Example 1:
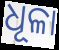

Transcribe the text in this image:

ଧୂଳା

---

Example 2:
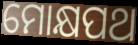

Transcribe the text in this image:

ମୋକ୍ଷପଥ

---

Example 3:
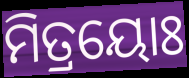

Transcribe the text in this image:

ମିତ୍ରୟୋଃ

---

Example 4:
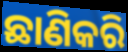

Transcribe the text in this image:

ଛାଣିକରି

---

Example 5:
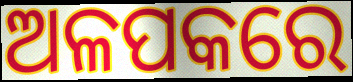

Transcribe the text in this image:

ଅଳପକରେ